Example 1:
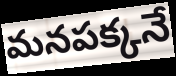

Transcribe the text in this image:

మనపక్కనే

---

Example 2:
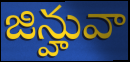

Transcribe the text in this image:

జిన్హువా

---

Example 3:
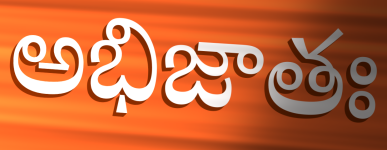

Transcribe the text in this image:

అభిజాతః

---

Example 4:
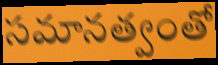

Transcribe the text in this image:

సమానత్వంతో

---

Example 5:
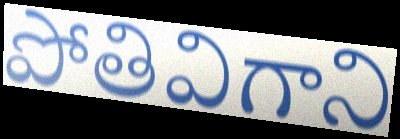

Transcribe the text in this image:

పోతివిగాని